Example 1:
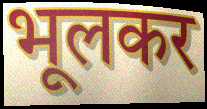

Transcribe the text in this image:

भूलकर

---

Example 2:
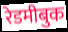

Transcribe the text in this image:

रेडमीबुक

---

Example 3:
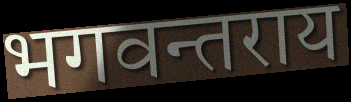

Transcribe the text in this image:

भगवन्तराय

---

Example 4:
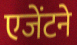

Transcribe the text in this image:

एजेंटने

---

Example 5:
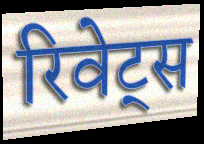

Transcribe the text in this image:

रिवेट्स